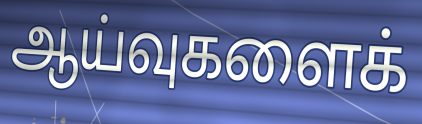
ஆய்வுகளைக்